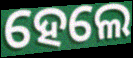
ହେଲେ